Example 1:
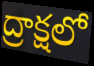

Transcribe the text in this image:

ద్రాక్షలో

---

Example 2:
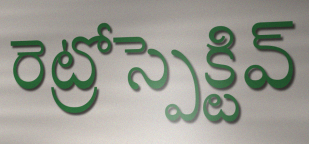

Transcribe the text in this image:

రెట్రోస్పెక్టివ్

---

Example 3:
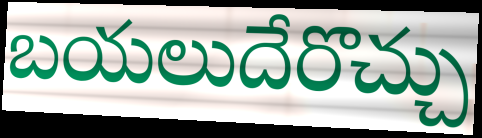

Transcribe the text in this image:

బయలుదేరొచ్చు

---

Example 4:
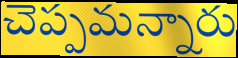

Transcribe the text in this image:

చెప్పమన్నారు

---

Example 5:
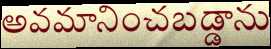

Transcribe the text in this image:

అవమానించబడ్డాను